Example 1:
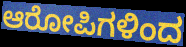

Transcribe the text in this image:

ಆರೋಪಿಗಳಿಂದ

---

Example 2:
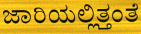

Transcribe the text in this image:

ಜಾರಿಯಲ್ಲಿತ್ತಂತೆ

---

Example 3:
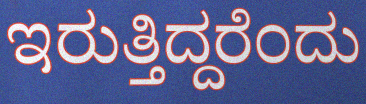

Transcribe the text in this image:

ಇರುತ್ತಿದ್ದರೆಂದು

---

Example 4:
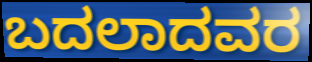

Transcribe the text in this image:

ಬದಲಾದವರ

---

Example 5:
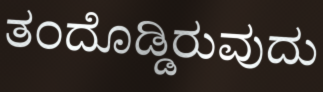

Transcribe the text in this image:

ತಂದೊಡ್ಡಿರುವುದು